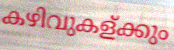
കഴിവുകള്ക്കും